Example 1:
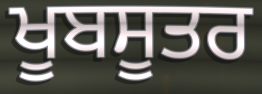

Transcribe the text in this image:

ਖੂਬਸੂਤਰ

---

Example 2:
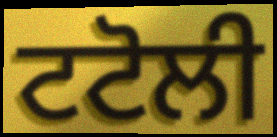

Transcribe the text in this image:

ਟਟੋਲੀ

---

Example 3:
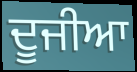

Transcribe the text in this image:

ਦੂਜੀਆ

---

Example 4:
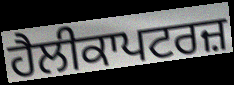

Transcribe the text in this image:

ਹੈਲੀਕਾਪਟਰਜ਼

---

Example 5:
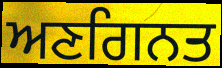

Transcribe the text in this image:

ਅਣਗਿਨਤ